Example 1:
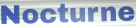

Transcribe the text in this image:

Nocturne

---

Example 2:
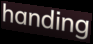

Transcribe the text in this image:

handing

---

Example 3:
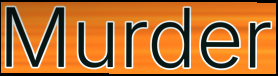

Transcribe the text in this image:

Murder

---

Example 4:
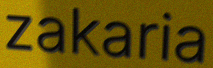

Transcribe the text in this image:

zakaria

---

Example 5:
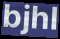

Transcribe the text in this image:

bjhl